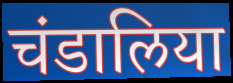
चंडालिया